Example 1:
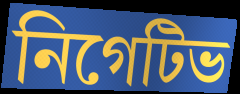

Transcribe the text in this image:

নিগেটিভ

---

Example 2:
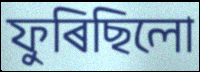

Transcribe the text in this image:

ফুৰিছিলো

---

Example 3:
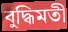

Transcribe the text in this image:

বুদ্ধিমতী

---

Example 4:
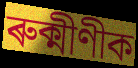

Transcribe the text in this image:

ৰুক্মীণীক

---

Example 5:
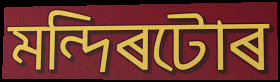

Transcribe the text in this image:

মন্দিৰটোৰ